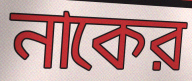
নাকের